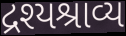
દ્રશ્યશ્રાવ્ય